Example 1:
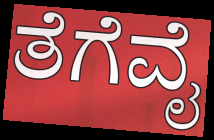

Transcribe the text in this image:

ತೆಗೆವೈ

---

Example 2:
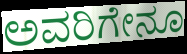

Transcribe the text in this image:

ಅವರಿಗೇನೂ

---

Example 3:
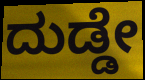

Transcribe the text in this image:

ದುಡ್ಡೇ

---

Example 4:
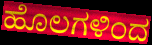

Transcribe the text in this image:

ಹೊಲಗಳಿಂದ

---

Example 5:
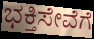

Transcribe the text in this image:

ಭಕ್ತಿಸೇವೆಗೆ